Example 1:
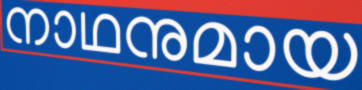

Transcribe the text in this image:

നാഥനുമായ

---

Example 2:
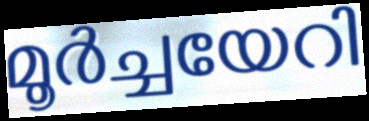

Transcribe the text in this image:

മൂർച്ചയേറി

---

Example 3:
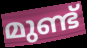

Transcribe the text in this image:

മുണ്ട്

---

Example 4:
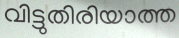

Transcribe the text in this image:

വിട്ടുതിരിയാത്ത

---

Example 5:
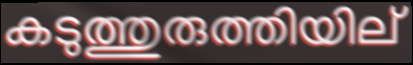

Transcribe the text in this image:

കടുത്തുരുത്തിയില്